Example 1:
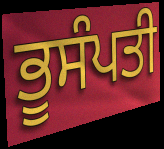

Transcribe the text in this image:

ਭੂਸੰਪਤੀ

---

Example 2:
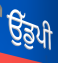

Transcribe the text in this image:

ਉੱਡੁਪੀ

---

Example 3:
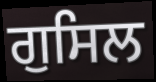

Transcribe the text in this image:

ਗੁਸਿਲ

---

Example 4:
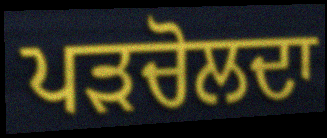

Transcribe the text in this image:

ਪੜਚੋਲਦਾ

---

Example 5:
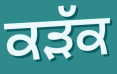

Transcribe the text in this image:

ਕੜੱਕ